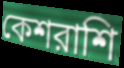
কেশরাশি